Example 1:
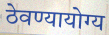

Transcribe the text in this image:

ठेवण्यायोग्य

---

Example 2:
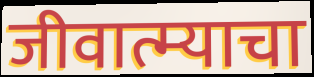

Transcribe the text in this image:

जीवात्म्याचा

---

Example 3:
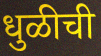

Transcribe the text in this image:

धुळीची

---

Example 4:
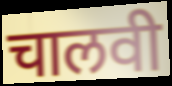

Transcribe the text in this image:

चालवी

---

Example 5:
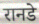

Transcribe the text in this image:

रानडे